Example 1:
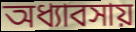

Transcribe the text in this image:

অধ্যাবসায়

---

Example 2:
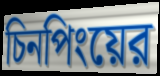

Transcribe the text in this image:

চিনপিংয়ের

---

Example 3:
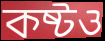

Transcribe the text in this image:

কষ্টও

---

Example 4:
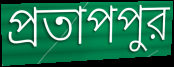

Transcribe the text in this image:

প্রতাপপুর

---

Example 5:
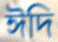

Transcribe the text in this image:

ঈদি